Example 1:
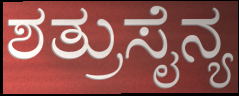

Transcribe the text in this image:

ಶತ್ರುಸೈನ್ಯ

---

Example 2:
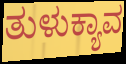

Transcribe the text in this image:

ತುಳುಕ್ಯಾವ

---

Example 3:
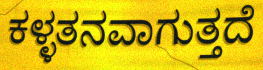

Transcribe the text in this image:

ಕಳ್ಳತನವಾಗುತ್ತದೆ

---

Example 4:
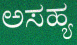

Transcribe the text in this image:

ಅಸಹ್ಯ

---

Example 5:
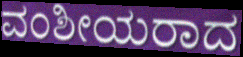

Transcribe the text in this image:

ವಂಶೀಯರಾದ